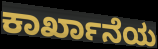
ಕಾರ್ಖಾನೆಯ